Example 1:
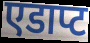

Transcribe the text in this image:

एडाप्ट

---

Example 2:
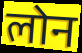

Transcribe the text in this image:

लोन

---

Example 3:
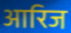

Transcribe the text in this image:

आरिज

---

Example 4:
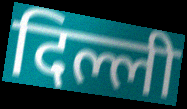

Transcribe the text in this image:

दिल्ली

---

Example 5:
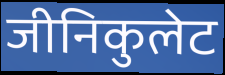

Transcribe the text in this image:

जीनिकुलेट